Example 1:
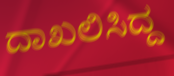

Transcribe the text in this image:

ದಾಖಲಿಸಿದ್ದ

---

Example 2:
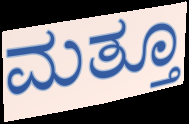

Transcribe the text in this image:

ಮತ್ತೂ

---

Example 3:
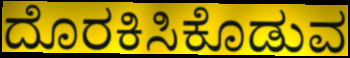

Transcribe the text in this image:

ದೊರಕಿಸಿಕೊಡುವ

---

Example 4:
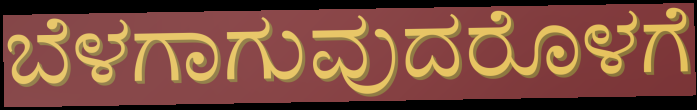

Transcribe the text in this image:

ಬೆಳಗಾಗುವುದರೊಳಗೆ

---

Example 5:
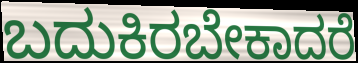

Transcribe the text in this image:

ಬದುಕಿರಬೇಕಾದರೆ